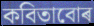
কবিতাবোৰ